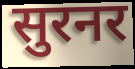
सुरनर